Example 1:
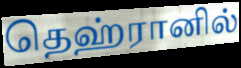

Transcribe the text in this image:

தெஹ்ரானில்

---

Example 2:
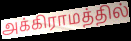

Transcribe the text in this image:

அக்கிராமத்தில்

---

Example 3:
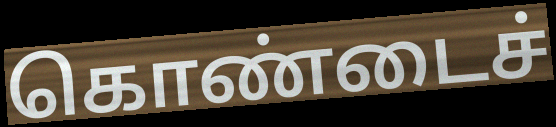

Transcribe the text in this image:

கொண்டைச்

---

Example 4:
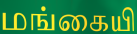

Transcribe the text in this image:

மங்கையி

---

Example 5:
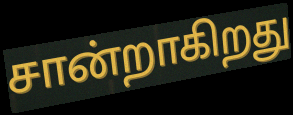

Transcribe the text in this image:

சான்றாகிறது